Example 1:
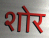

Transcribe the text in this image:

शोर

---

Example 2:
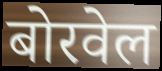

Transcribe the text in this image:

बोरवेल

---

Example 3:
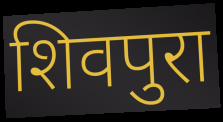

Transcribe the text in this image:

शिवपुरा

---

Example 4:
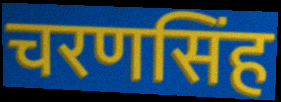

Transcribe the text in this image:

चरणसिंह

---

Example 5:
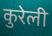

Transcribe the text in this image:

कुरेली